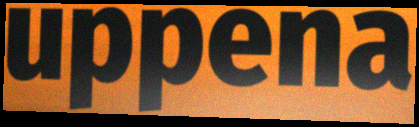
uppena